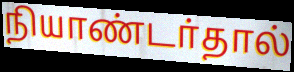
நியாண்டர்தால்